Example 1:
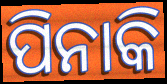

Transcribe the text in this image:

ପିନାକି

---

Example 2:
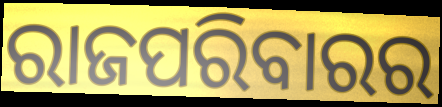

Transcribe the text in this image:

ରାଜପରିବାରର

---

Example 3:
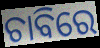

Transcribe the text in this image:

ଚାବିରେ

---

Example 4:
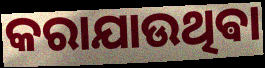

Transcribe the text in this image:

କରାଯାଉଥିଵା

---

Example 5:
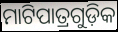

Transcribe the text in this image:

ମାଟିପାତ୍ରଗୁଡ଼ିକ